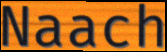
Naach